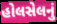
હોલસેલનું